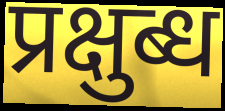
प्रक्षुब्ध